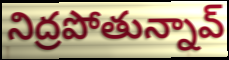
నిద్రపోతున్నావ్